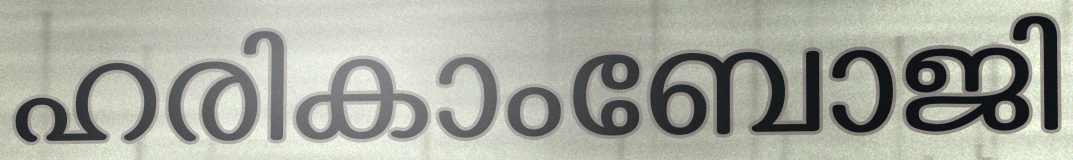
ഹരികാംബോജി